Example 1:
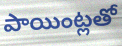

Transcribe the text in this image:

పాయింట్లతో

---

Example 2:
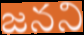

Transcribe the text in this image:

జనని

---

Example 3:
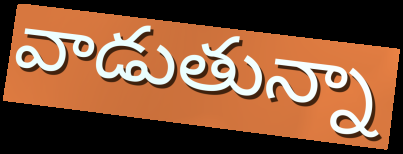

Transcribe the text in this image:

వాడుతున్నా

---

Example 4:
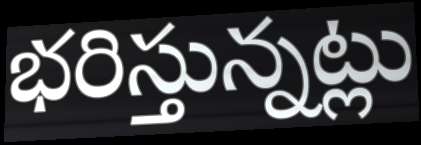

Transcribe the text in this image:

భరిస్తున్నట్లు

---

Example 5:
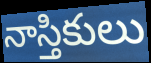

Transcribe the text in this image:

నాస్తికులు